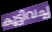
കൂട്ടിവച്ച